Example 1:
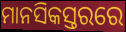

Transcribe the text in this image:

ମାନସିକସ୍ତରରେ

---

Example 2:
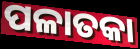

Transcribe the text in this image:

ପଳାତକା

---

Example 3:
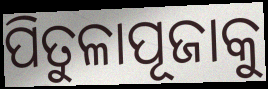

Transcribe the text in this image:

ପିତୁଳାପୂଜାକୁ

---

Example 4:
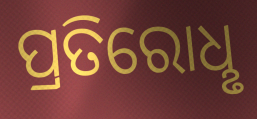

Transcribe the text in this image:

ପ୍ରତିରୋଧୢ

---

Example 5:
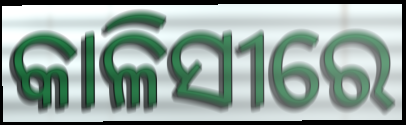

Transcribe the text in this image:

କାଳିସୀରେ